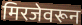
मिरजेवरून